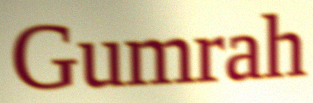
Gumrah